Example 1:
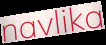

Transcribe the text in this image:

navlika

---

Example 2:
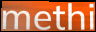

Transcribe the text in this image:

methi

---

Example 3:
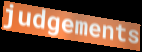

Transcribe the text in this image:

judgements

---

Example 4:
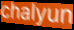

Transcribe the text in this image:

chalyun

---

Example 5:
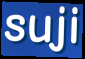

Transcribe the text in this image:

suji